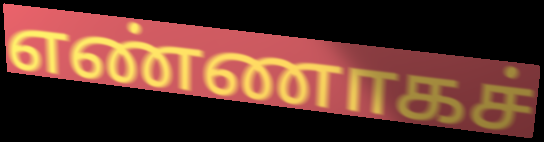
எண்ணாகச்